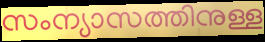
സംന്യാസത്തിനുള്ള